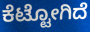
ಕೆಟ್ಟೋಗಿದೆ